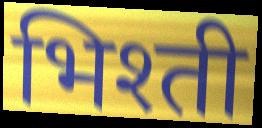
भिश्ती